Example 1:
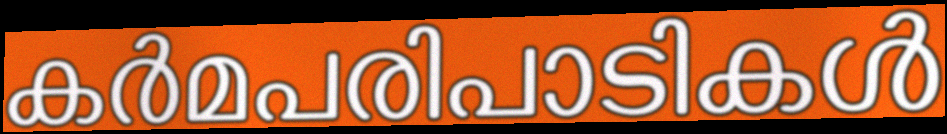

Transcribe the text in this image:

കർമപരിപാടികൾ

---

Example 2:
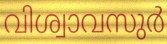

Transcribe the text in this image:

വിശ്വാവസുർ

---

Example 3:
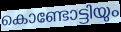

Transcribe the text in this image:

കൊണ്ടോട്ടിയും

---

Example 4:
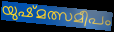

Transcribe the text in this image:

യുഷ്മത്സമീപം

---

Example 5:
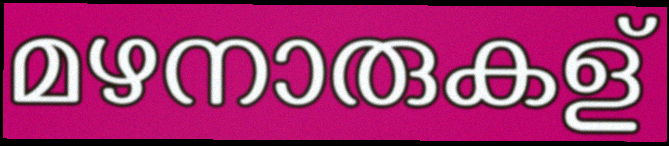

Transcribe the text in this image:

മഴനാരുകള്